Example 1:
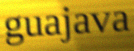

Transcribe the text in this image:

guajava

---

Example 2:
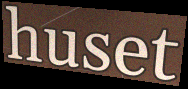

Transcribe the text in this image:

huset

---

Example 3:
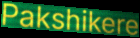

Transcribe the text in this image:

Pakshikere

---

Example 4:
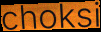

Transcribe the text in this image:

choksi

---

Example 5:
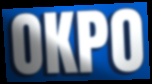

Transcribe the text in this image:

OKPO